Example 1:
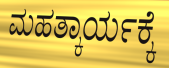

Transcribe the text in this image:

ಮಹತ್ಕಾರ್ಯಕ್ಕೆ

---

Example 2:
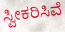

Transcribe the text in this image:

ಸ್ವೀಕರಿಸಿವೆ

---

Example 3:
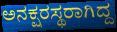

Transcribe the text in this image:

ಅನಕ್ಷರಸ್ಥರಾಗಿದ್ದ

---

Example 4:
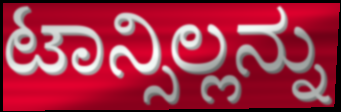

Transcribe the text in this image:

ಟಾನ್ಸಿಲ್ಲನ್ನು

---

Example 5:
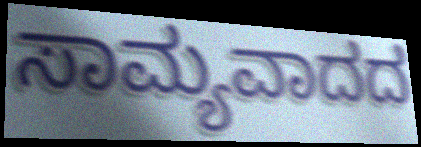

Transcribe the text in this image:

ಸಾಮ್ಯವಾದದ